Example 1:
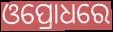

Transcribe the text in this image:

ଓପ୍ରୋଧରେ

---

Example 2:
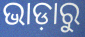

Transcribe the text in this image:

ଭାଡ଼ାରୁ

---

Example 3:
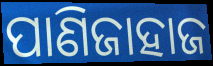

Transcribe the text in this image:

ପାଣିଜାହାଜ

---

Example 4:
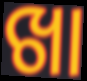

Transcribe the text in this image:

ଖା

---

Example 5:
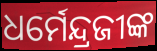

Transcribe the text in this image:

ଧର୍ମେନ୍ଦ୍ରଜୀଙ୍କ